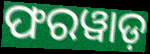
ଫରୱାଡ଼